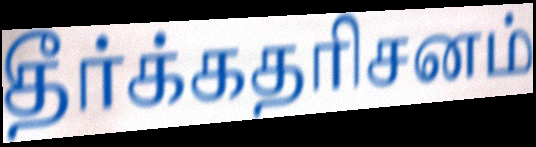
தீர்க்கதரிசனம்